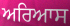
ਅਰਿਆਸ